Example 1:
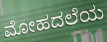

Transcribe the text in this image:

ಮೋಹದಲೆಯ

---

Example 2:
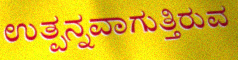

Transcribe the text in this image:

ಉತ್ಪನ್ನವಾಗುತ್ತಿರುವ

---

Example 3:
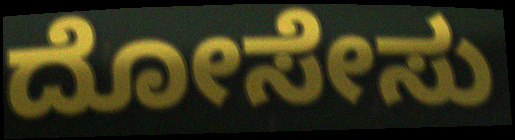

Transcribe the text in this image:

ದೋಸೇಸು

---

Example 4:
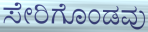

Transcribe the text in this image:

ಸೇರಿಗೊಂಡವು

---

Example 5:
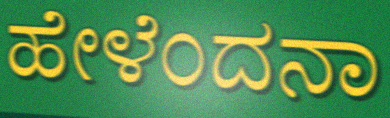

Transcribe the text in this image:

ಹೇಳೆಂದನಾ